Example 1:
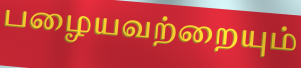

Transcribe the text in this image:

பழையவற்றையும்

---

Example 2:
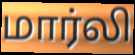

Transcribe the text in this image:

மார்லி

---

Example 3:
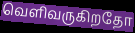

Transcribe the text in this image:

வெளிவருகிறதோ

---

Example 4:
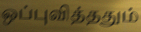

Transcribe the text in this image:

ஒப்புவித்ததும்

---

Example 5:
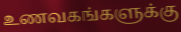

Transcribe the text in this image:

உணவகங்களுக்கு